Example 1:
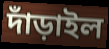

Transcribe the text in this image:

দাঁড়াইল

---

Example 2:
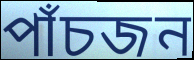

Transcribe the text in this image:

পাঁচজন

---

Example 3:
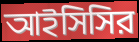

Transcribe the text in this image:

আইসিসির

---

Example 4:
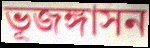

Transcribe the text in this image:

ভূজঙ্গাসন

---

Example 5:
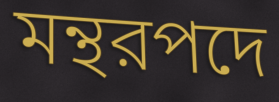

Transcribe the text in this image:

মন্থরপদে